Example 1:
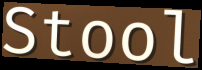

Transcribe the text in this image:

Stool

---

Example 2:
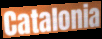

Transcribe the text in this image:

Catalonia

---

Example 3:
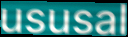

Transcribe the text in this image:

ususal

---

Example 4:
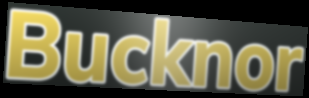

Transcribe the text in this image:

Bucknor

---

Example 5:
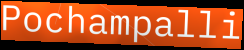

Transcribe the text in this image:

Pochampalli